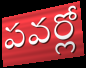
పవర్లో